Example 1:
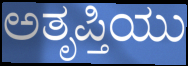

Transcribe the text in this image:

ಅತೃಪ್ತಿಯು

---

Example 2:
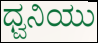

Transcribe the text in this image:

ಧ್ವನಿಯು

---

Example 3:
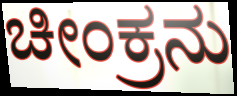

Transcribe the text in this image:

ಚೀಂಕ್ರನು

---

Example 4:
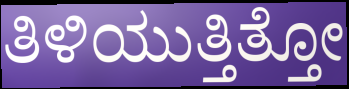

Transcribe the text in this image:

ತಿಳಿಯುತ್ತಿತ್ತೋ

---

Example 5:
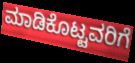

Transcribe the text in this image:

ಮಾಡಿಕೊಟ್ಟವರಿಗೆ